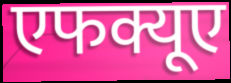
एफक्यूए